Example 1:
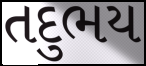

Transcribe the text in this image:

તદુભય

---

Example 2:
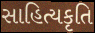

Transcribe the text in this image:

સાહિત્યકૃતિ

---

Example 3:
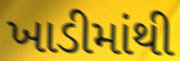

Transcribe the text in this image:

ખાડીમાંથી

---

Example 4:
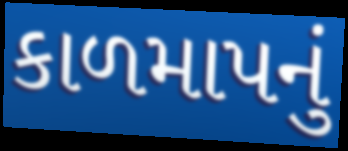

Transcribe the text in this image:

કાળમાપનું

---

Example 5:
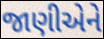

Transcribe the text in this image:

જાણીએને